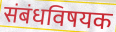
संबंधविषयक